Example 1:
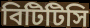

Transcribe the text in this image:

বিটিটিসি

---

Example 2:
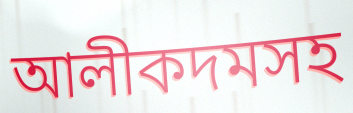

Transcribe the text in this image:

আলীকদমসহ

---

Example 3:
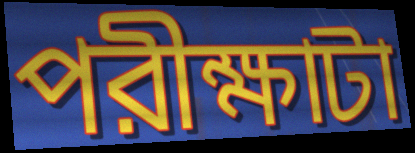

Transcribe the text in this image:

পরীক্ষাটা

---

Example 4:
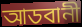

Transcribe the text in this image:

আডবানী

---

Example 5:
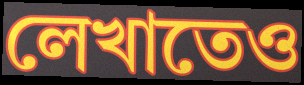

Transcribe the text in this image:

লেখাতেও